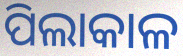
ପିଲାକାଳ